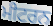
ਮੀਟਰਨ